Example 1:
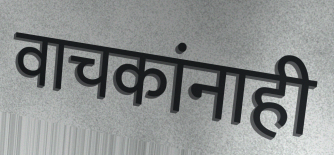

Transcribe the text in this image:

वाचकांनाही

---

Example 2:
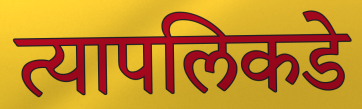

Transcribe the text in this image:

त्यापलिकडे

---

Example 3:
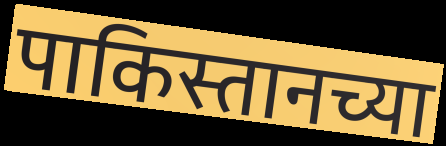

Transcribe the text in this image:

पाकिस्तानच्या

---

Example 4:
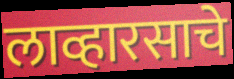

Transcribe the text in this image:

लाव्हारसाचे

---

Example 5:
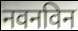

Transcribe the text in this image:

नवनविन